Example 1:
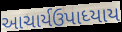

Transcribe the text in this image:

આચાર્યઉપાધ્યાય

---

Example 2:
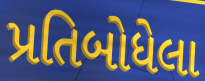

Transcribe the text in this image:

પ્રતિબોધેલા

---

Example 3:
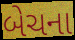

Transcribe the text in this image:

બેચના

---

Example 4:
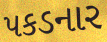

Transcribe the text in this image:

પકડનાર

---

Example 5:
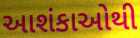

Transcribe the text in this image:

આશંકાઓથી